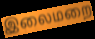
இலைமறை